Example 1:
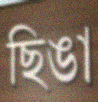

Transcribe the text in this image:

ছিঙা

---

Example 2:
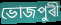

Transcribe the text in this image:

ভোজপুৰী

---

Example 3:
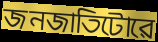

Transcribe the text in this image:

জনজাতিটোৱে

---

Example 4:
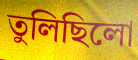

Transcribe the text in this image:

তুলিছিলো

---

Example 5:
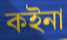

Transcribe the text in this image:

কইনা